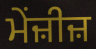
ਮੇਂਜ਼ੀਜ਼